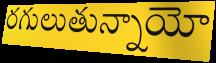
రగులుతున్నాయో